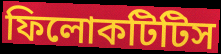
ফিলোকটিটিস